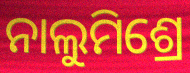
ନାଲୁମିଶ୍ରେ